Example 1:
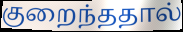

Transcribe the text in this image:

குறைந்ததால்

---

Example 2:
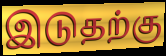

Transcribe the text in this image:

இடுதற்கு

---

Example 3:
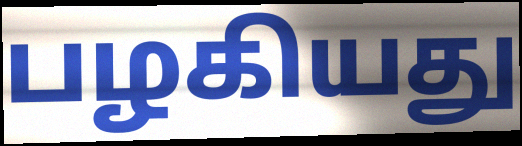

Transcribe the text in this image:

பழகியது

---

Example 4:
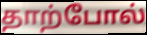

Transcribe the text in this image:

தாற்போல்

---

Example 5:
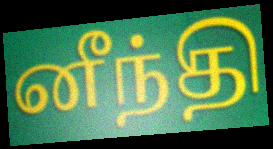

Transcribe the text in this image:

னீந்தி